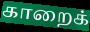
காறைக்